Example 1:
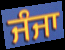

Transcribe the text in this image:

ਜੰਜਾ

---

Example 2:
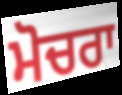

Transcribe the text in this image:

ਮੋਚਰਾ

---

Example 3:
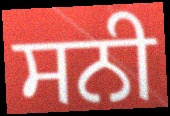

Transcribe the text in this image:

ਸਨੀ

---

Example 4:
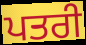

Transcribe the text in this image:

ਪਤਰੀ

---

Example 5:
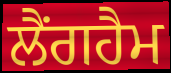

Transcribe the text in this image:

ਲੈਂਗਹੈਮ